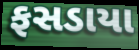
ફસડાયા